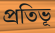
প্ৰতিভূ